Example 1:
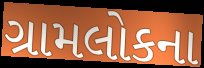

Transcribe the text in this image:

ગ્રામલોકના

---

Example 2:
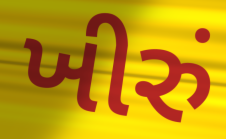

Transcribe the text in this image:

ખીરું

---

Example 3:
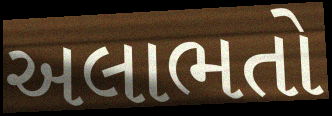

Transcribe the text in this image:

અલાભતો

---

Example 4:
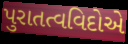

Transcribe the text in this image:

પુરાતત્વવિદોએ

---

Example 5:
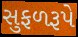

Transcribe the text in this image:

સુફળરૂપે